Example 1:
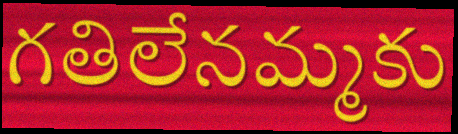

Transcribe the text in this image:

గతిలేనమ్మకు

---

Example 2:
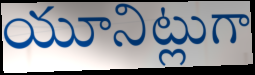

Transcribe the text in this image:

యూనిట్లుగా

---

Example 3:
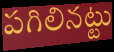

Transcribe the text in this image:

పగిలినట్టు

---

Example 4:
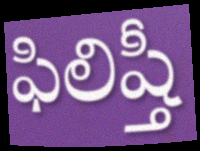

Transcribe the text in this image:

ఫిలిష్తీ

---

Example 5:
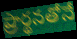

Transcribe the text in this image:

ప్రార్థనతోనే